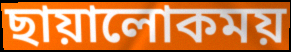
ছায়ালোকময়